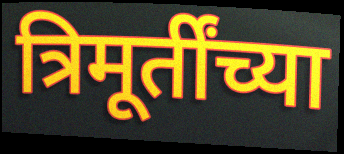
त्रिमूर्तींच्या